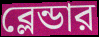
ব্লেন্ডার